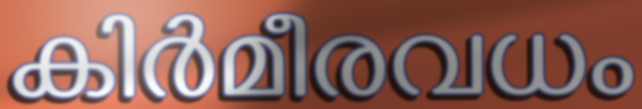
കിർമീരവധം